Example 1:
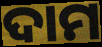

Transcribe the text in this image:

ଦାମ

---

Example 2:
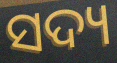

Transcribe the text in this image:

ସଦ୍ୟ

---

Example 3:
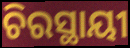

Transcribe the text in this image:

ଚିରସ୍ଥାୟୀ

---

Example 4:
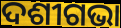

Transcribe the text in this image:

ଦଶୀଗଭା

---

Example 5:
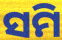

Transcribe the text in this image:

ସମି